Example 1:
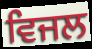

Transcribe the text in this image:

ਵਿਜਲ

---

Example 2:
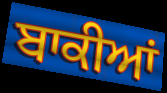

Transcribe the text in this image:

ਬਾਕੀਆਂ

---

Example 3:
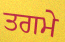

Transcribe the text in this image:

ਤਗਮੇ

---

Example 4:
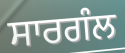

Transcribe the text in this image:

ਸਾਰਗੰਲ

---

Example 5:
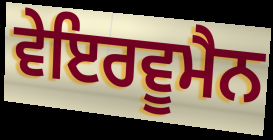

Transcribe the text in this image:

ਵੇਇਰਵੂਮੈਨ